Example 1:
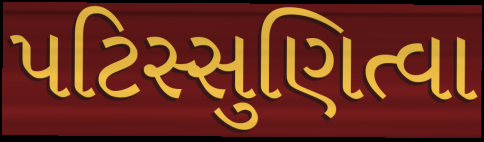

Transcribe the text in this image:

પટિસ્સુણિત્વા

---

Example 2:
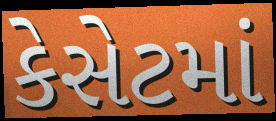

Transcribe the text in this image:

કેસેટમાં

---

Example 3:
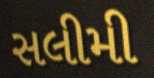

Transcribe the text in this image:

સલીમી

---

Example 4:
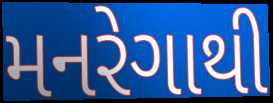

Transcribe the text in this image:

મનરેગાથી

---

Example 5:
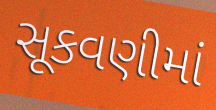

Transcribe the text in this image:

સૂકવણીમાં